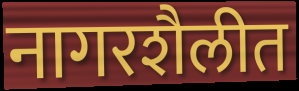
नागरशैलीत